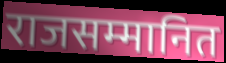
राजसम्मानित